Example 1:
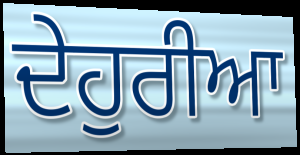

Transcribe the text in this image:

ਦੇਹੁਰੀਆ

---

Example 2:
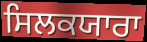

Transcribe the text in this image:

ਸਿਲਕਯਾਰਾ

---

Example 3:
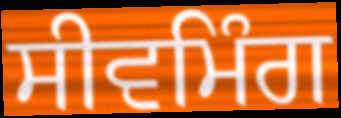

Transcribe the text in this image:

ਸੀਵਮਿੰਗ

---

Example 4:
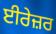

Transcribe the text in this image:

ਈਰੇਜ਼ਰ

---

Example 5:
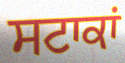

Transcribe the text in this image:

ਸਟਾਕਾਂ